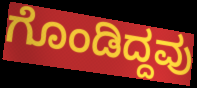
ಗೊಂಡಿದ್ದವು